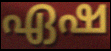
ഏഷ